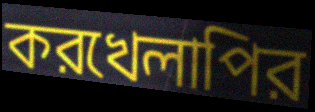
করখেলাপির